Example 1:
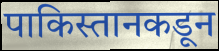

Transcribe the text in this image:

पाकिस्तानकडून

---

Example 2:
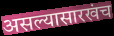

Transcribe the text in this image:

असल्यासारखंच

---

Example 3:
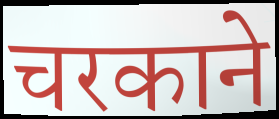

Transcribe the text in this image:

चरकाने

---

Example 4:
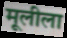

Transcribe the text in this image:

मूलीला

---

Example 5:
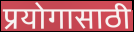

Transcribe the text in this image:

प्रयोगासाठी